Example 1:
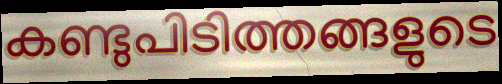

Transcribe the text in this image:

കണ്ടുപിടിത്തങ്ങളുടെ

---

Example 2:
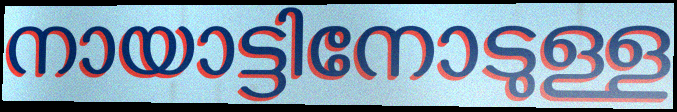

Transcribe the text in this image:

നായാട്ടിനോടുള്ള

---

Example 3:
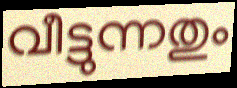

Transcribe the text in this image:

വീട്ടുന്നതും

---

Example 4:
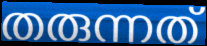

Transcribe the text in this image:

തരുന്നത്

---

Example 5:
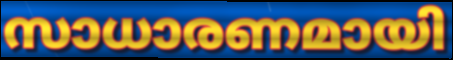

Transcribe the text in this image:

സാധാരണമായി